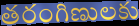
తరంగిణులకు